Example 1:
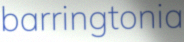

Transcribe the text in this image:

barringtonia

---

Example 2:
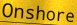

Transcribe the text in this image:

Onshore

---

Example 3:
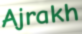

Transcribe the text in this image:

Ajrakh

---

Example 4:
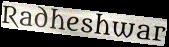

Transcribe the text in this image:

Radheshwar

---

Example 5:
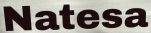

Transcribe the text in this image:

Natesa